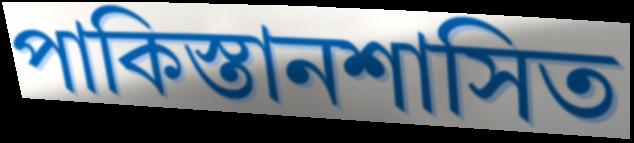
পাকিস্তানশাসিত